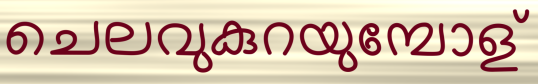
ചെലവുകുറയുമ്പോള്